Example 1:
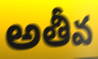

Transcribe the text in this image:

అతీవ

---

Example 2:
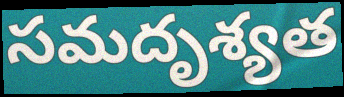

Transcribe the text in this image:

సమదృశ్యత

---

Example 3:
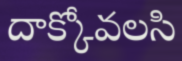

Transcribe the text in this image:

దాక్కోవలసి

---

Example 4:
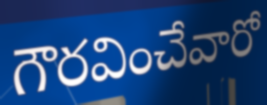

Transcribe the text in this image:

గౌరవించేవారో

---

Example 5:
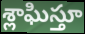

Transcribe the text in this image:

శ్లాఘిస్తూ